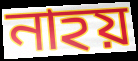
নাহয়